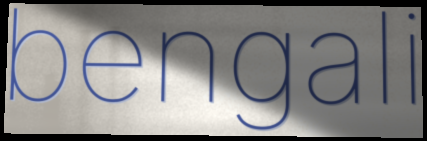
bengali